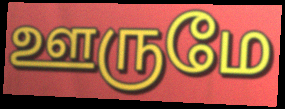
ஊருமே